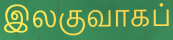
இலகுவாகப்